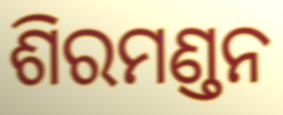
ଶିରମଣ୍ଡନ